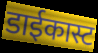
डाईकास्ट